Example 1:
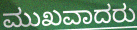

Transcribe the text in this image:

ಮುಖವಾದರು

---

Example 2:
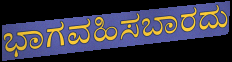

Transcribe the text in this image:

ಭಾಗವಹಿಸಬಾರದು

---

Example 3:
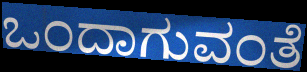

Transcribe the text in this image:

ಒಂದಾಗುವಂತೆ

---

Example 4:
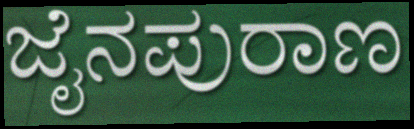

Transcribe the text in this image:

ಜೈನಪುರಾಣ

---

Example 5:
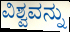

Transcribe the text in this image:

ವಿಶ್ವವನ್ನು